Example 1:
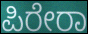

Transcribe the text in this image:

ಪಿರೇರಾ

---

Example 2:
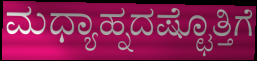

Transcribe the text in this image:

ಮಧ್ಯಾಹ್ನದಷ್ಟೊತ್ತಿಗೆ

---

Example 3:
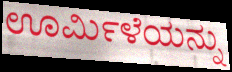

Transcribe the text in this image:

ಊರ್ಮಿಳೆಯನ್ನು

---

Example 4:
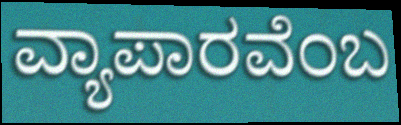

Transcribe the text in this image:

ವ್ಯಾಪಾರವೆಂಬ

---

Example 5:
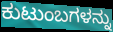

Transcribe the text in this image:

ಕುಟುಂಬಗಳನ್ನು